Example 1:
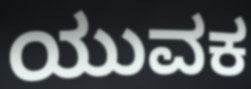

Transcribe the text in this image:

ಯುವಕ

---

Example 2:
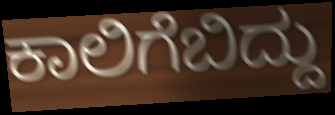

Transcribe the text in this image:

ಕಾಲಿಗೆಬಿದ್ದು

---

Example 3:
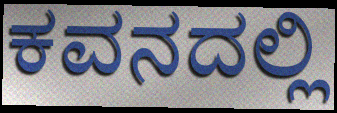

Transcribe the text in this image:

ಕವನದಲ್ಲಿ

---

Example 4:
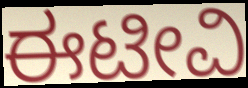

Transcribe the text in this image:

ಈಟೀವಿ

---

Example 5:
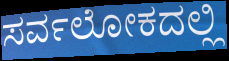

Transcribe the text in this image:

ಸರ್ವಲೋಕದಲ್ಲಿ